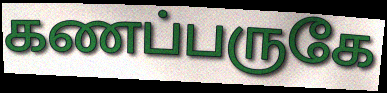
கணப்பருகே